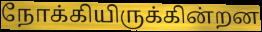
நோக்கியிருக்கின்றன